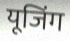
यूजिंग